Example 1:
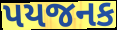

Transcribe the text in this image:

પયજનક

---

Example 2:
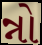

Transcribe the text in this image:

ન્નો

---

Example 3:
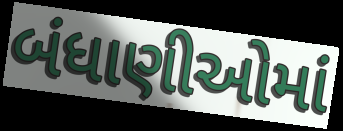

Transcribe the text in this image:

બંધાણીઓમાં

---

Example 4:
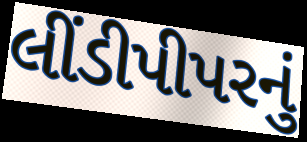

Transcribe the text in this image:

લીંડીપીપરનું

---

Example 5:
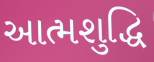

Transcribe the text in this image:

આત્મશુદ્ધિ